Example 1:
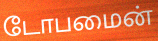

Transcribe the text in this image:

டோபமைன்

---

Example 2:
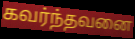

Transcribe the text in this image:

கவர்ந்தவனை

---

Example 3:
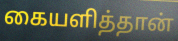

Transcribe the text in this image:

கையளித்தான்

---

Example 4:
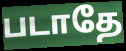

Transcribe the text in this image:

படாதே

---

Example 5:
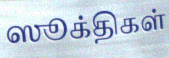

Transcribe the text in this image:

ஸூக்திகள்